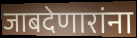
जाबदेणारांना